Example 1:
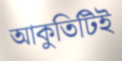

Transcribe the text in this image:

আকুতিটিই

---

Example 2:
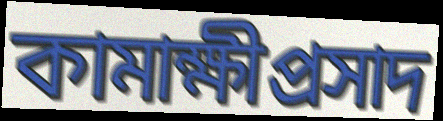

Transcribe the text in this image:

কামাক্ষীপ্রসাদ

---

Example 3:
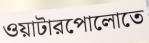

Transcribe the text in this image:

ওয়াটারপোলোতে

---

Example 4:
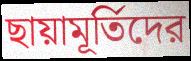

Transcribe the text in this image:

ছায়ামূর্তিদের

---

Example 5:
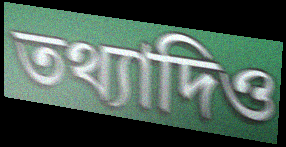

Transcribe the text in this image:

তথ্যাদিও